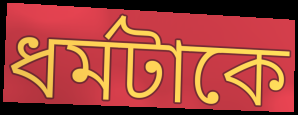
ধর্মটাকে